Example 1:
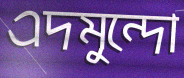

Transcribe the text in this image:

এদমুন্দো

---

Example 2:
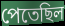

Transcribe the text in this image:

পেতেছিল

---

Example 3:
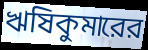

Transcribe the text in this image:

ঋষিকুমারের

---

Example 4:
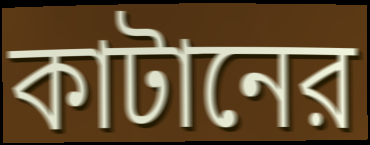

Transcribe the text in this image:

কাটানের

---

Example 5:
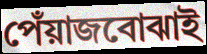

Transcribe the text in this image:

পেঁয়াজবোঝাই